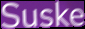
Suske